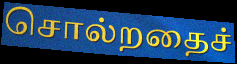
சொல்றதைச்